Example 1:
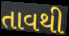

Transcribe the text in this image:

તાવથી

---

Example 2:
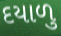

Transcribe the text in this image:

દયાળુ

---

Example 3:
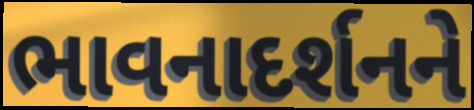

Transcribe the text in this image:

ભાવનાદર્શનને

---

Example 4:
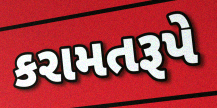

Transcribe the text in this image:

કરામતરૂપે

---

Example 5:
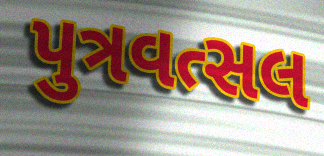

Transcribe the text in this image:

પુત્રવત્સલ